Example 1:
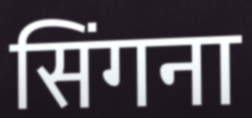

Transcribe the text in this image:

सिंगना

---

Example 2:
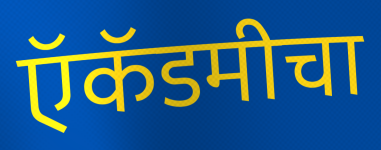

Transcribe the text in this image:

ऍकॅडमीचा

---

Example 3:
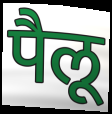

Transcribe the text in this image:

पैलू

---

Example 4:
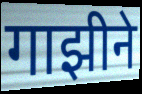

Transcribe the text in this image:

गाझीने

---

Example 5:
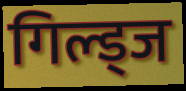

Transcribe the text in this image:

गिल्ड्ज